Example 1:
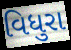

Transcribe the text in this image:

વિધુરા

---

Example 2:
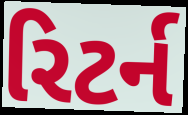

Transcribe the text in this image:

રિટર્ન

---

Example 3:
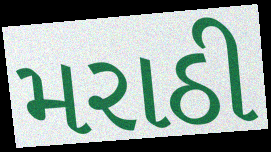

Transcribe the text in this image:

મરાઠી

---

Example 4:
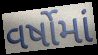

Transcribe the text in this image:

વર્ષોમાં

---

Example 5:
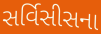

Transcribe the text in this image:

સર્વિસીસના